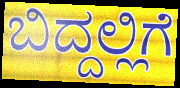
ಬಿದ್ದಲ್ಲಿಗೆ